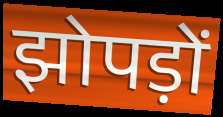
झोपड़ों